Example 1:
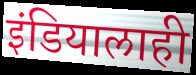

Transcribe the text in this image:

इंडियालाही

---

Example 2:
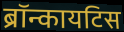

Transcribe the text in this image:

ब्रॉन्कायटिस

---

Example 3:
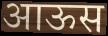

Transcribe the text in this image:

आऊस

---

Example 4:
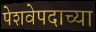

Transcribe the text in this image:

पेशवेपदाच्या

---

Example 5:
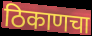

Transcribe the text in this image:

ठिकाणचा